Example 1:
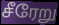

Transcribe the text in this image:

சீரேறு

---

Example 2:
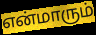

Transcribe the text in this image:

என்மாரும்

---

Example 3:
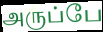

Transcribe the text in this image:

அருப்பே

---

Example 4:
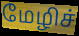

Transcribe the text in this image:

மேழிச்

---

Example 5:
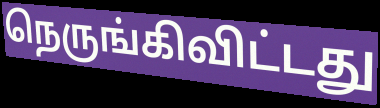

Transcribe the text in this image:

நெருங்கிவிட்டது